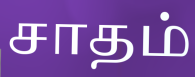
சாதம்